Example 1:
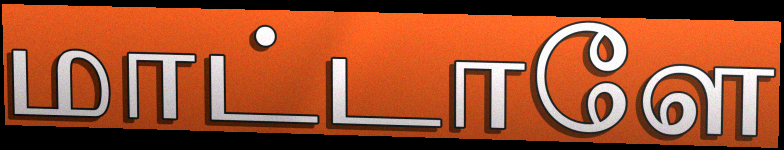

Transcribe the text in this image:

மாட்டாளே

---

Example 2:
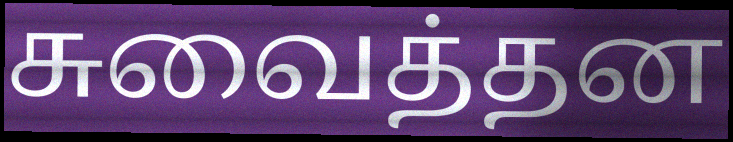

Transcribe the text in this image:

சுவைத்தன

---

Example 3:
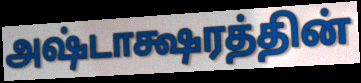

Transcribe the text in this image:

அஷ்டாக்ஷரத்தின்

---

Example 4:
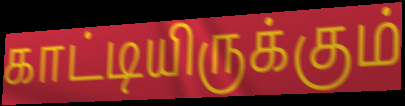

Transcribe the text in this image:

காட்டியிருக்கும்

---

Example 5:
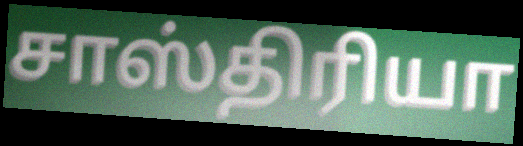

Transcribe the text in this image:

சாஸ்திரியா